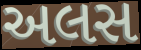
અલસ